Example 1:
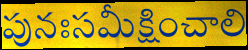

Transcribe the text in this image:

పునఃసమీక్షించాలి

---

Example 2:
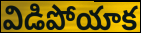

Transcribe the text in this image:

విడిపోయాక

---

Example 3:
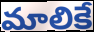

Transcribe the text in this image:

మాలికే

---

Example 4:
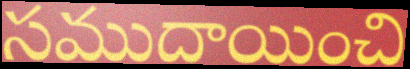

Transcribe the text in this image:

సముదాయించి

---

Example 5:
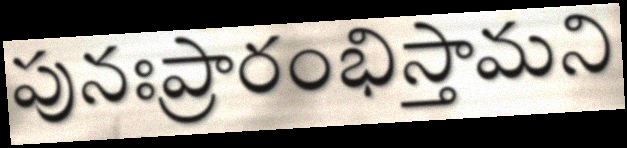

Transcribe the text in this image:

పునఃప్రారంభిస్తామని